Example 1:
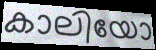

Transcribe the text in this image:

കാലിയോ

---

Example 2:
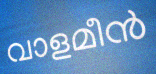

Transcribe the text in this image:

വാളമീൻ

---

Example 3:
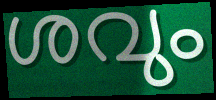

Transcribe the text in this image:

ശവും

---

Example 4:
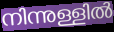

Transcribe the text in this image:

നിന്നുള്ളിൽ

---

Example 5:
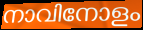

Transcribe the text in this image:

നാവിനോളം